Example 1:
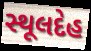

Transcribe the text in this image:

સ્થૂલદેહ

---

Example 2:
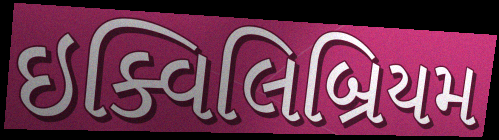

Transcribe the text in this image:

ઇક્વિલિબ્રિયમ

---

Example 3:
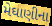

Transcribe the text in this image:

મેઘાણીના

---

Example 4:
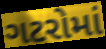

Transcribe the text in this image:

ગટરોમાં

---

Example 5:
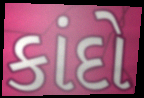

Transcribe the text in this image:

કાંદો